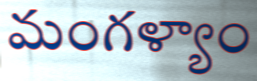
మంగళ్యాం